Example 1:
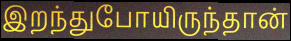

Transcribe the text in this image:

இறந்துபோயிருந்தான்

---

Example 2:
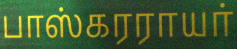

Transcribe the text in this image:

பாஸ்கரராயர்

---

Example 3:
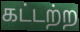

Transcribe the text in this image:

கட்டற்ற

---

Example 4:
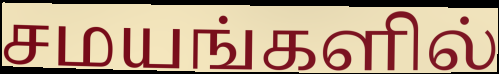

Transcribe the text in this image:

சமயங்களில்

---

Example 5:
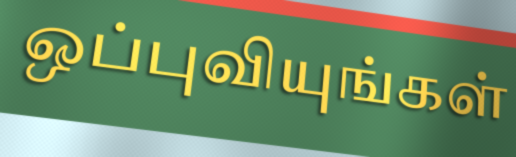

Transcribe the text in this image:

ஒப்புவியுங்கள்